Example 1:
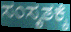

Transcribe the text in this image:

ಸಂಸ್ಕೃತಕ್ಕೆ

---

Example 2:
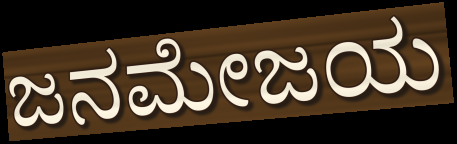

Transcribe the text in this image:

ಜನಮೇಜಯ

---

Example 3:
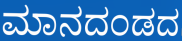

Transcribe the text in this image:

ಮಾನದಂಡದ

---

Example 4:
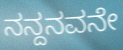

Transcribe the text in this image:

ನನ್ದನವನೇ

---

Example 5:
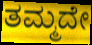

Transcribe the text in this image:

ತಮ್ಮದೇ